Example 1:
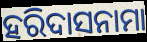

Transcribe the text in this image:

ହରିଦାସନାମା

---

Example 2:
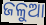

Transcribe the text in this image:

ଜଳୁଆ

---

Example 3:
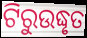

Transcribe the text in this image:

ଟିରୁଉଦ୍ଧୃତ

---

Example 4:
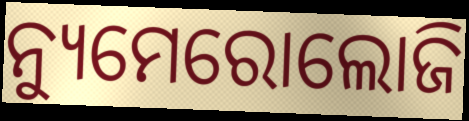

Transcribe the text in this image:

ନ୍ୟୁମେରୋଲୋଜି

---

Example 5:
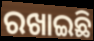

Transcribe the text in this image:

ରଖାଇଛି